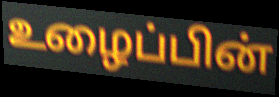
உழைப்பின்